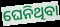
ଘେନିଥିବା